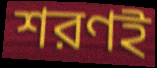
শরণই